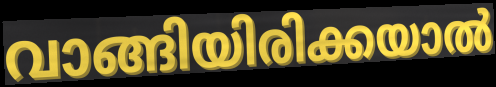
വാങ്ങിയിരിക്കയാൽ